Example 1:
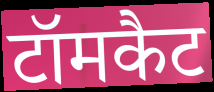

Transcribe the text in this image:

टॉमकैट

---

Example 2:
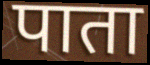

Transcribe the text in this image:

पाता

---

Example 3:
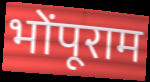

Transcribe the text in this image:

भोंपूराम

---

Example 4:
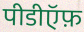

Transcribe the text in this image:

पीडीऍफ़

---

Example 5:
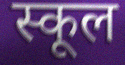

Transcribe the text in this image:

स्कूल